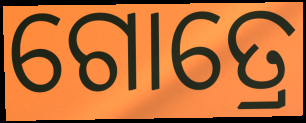
ଗୋତ୍ରେ